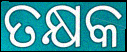
ତକ୍ଷକ